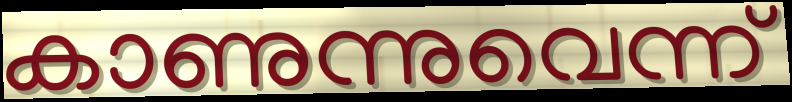
കാണുന്നുവെന്ന്